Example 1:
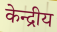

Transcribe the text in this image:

केन्द्रीय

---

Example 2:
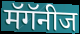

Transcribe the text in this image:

मॅगॅनीज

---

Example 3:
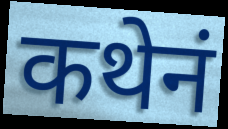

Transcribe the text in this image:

कथेनं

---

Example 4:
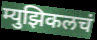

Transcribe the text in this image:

म्युझिकलचं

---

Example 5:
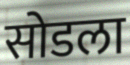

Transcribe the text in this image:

सोडला